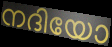
നദിയോ